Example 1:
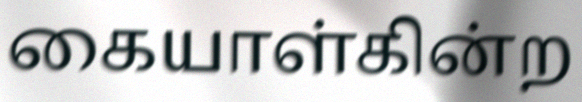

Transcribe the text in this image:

கையாள்கின்ற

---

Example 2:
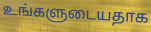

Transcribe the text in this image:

உங்களுடையதாக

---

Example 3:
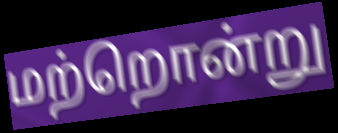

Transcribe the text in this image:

மற்றொன்று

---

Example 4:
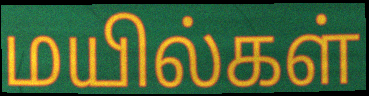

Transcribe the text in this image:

மயில்கள்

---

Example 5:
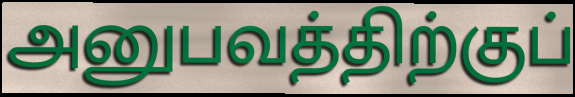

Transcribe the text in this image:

அனுபவத்திற்குப்